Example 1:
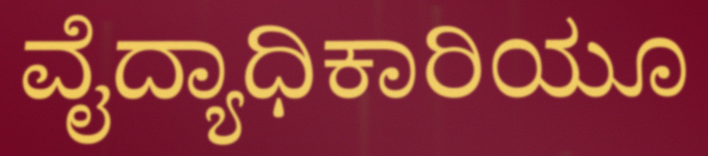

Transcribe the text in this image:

ವೈದ್ಯಾಧಿಕಾರಿಯೂ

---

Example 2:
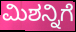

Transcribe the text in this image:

ಮಿಶನ್ನಿಗೆ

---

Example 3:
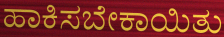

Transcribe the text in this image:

ಹಾಕಿಸಬೇಕಾಯಿತು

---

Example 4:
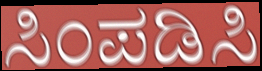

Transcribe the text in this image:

ಸಿಂಪಡಿಸಿ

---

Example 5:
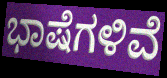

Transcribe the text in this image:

ಭಾಷೆಗಳಿವೆ